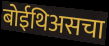
बोईथिअसचा